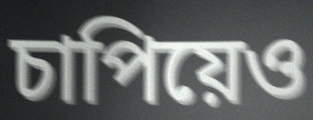
চাপিয়েও